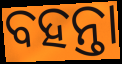
ବହନ୍ତା